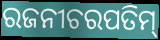
ରଜନୀଚରପତିମ୍